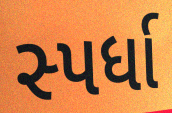
સ્પર્ધા